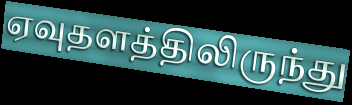
ஏவுதளத்திலிருந்து